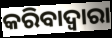
କରିବାଦ୍ବାରା